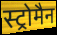
स्ट्रोमैन